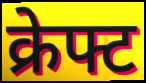
क्रेफ्ट